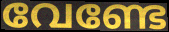
വേണ്ടേ